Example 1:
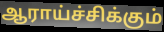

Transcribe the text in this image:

ஆராய்ச்சிக்கும்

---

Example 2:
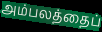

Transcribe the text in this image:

அம்பலத்தைப்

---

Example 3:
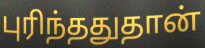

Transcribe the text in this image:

புரிந்ததுதான்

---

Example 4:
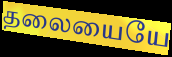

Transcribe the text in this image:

தலையையே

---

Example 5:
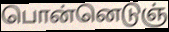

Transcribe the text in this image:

பொன்னெடுஞ்